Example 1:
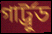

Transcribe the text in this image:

গার্ট্রুড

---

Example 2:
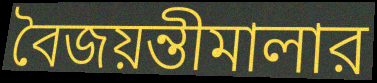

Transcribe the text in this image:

বৈজয়ন্তীমালার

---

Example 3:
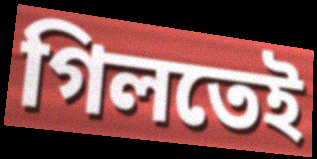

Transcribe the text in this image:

গিলতেই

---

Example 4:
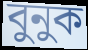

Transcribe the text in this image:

বুনুক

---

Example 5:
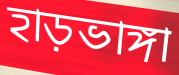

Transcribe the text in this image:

হাড়ভাঙ্গা